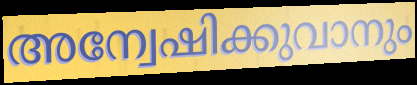
അന്വേഷിക്കുവാനും